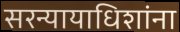
सरन्यायाधिशांना